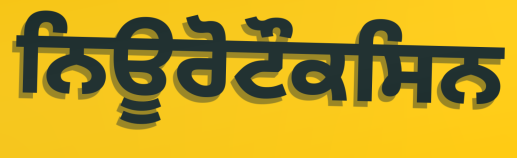
ਨਿਊਰੋਟੌਕਸਿਨ